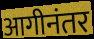
आगीनंतर